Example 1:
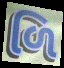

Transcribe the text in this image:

ળિ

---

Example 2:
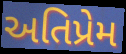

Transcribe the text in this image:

અતિપ્રેમ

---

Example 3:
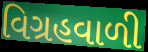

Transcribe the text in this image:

વિગ્રહવાળી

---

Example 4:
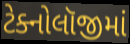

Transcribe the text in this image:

ટેક્નોલૉજીમાં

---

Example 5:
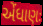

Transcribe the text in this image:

એંધાણઃ